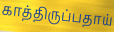
காத்திருப்பதாய்